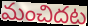
మంచిదట